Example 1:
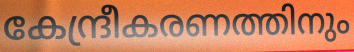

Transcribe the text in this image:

കേന്ദ്രീകരണത്തിനും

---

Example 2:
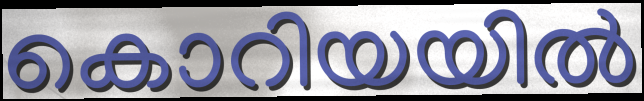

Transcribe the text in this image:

കൊറിയയിൽ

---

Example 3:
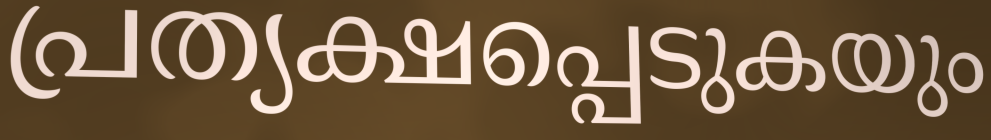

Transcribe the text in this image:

പ്രത്യക്ഷപ്പെടുകയും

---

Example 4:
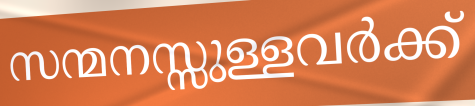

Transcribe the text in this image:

സന്മനസ്സുള്ളവർക്ക്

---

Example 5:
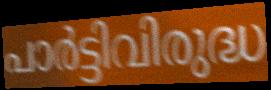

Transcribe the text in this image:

പാർട്ടിവിരുദ്ധ